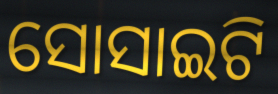
ସୋସାଇଟି